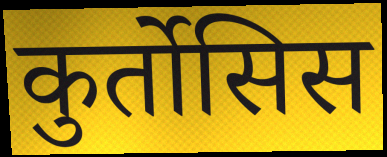
कुर्तोसिस